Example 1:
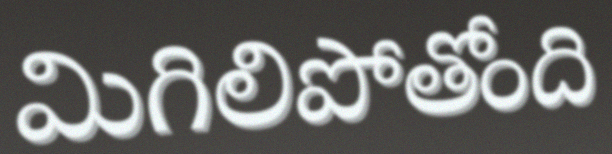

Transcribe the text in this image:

మిగిలిపోతోంది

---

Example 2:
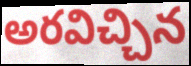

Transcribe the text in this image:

అరవిచ్చిన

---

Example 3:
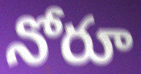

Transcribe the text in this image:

నోరూ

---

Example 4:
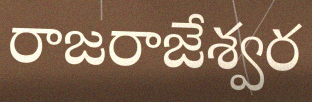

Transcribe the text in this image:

రాజరాజేశ్వర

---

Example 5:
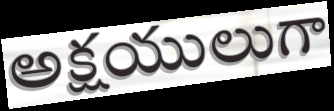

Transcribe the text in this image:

అక్షయులుగా